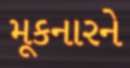
મૂકનારને